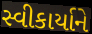
સ્વીકાર્યાને